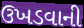
ઉખડવાની